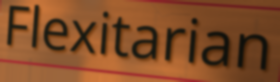
Flexitarian